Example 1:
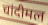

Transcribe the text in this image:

चांदीमल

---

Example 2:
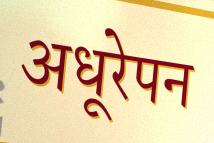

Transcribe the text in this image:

अधूरेपन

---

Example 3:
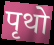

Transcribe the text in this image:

पृथो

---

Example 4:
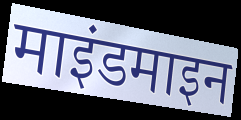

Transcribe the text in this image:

माइंडमाइन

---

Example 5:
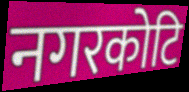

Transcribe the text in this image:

नगरकोटि